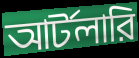
আর্টলারি